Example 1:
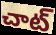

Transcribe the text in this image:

చాట్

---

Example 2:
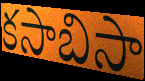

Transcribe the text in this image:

కసాబిసా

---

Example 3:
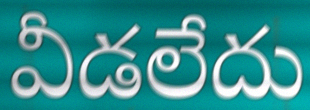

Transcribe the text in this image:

వీడలేదు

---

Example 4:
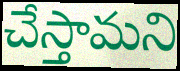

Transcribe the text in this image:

చేస్తామని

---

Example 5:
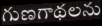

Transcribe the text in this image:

గుణగాథలను